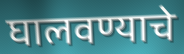
घालवण्याचे